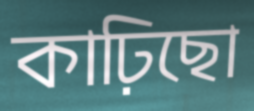
কাঢ়িছো